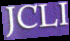
JCLI